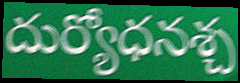
దుర్యోధనశ్చ